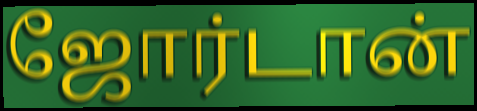
ஜோர்டான்